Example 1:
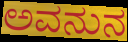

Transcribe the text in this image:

ಅವನುನ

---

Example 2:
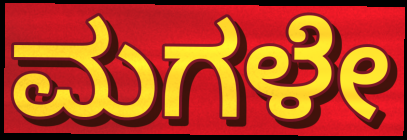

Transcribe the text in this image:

ಮಗಳೇ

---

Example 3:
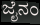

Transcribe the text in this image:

ಜೈನಂ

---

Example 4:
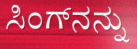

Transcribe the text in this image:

ಸಿಂಗ್‌ನನ್ನು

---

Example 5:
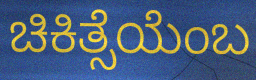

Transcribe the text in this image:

ಚಿಕಿತ್ಸೆಯೆಂಬ